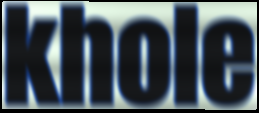
khole